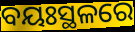
ବୟଃସ୍ଥଳରେ